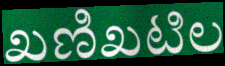
ಖಣಿಖಟಿಲ